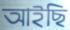
আইছি